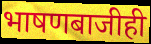
भाषणबाजीही